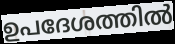
ഉപദേശത്തിൽ